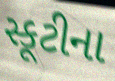
સ્કૂટીના